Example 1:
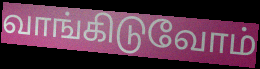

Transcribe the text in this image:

வாங்கிடுவோம்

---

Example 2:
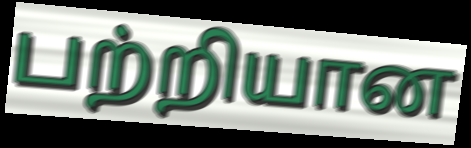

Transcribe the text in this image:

பற்றியான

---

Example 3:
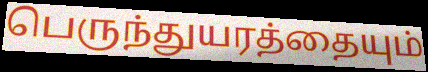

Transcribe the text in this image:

பெருந்துயரத்தையும்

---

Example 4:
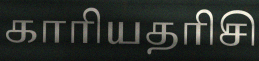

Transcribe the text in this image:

காரியதரிசி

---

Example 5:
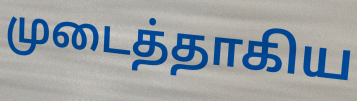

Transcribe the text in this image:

முடைத்தாகிய